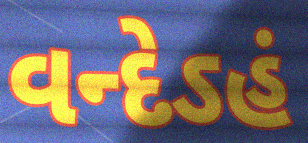
વન્દેઽહં